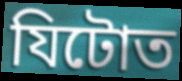
যিটোত